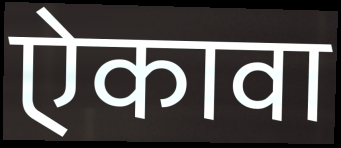
ऐकावा